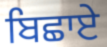
ਬਿਛਾਏ